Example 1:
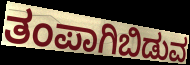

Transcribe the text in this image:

ತಂಪಾಗಿಬಿಡುವ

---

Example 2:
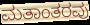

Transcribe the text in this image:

ಮತಾಂತರವು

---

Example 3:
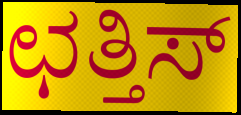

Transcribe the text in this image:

ಛತ್ತಿಸ್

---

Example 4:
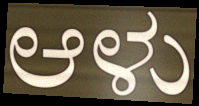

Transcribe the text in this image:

ಆಳು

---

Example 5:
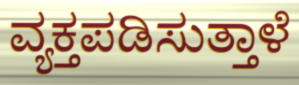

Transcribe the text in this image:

ವ್ಯಕ್ತಪಡಿಸುತ್ತಾಳೆ